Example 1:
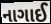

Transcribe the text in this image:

નાગાઈ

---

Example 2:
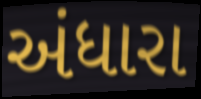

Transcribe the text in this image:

અંધારા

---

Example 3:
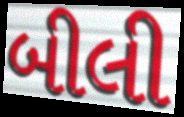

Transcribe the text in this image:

બીલી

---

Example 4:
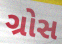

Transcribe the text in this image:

ગ્રોસ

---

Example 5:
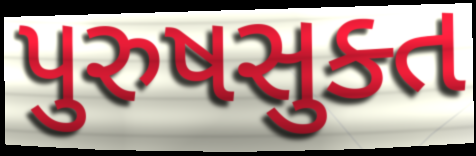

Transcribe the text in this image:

પુરુષસુક્ત